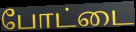
போட்டை